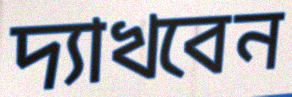
দ্যাখবেন